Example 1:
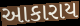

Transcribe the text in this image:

આકારાય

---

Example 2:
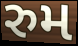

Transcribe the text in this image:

રુમ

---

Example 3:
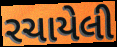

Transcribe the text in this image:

રચાયેલી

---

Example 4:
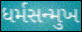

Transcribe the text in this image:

ધર્મસન્મુખ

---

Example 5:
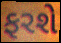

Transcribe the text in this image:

ફરશે